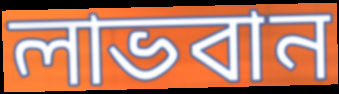
লাভবান